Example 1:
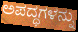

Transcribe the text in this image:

ಅಪದ್ಧಗಳನ್ನು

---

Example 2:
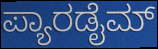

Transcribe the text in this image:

ಪ್ಯಾರಡೈಮ್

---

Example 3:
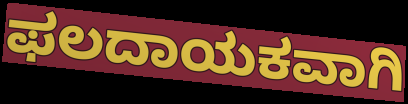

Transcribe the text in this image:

ಫಲದಾಯಕವಾಗಿ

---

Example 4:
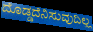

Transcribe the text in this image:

ದೊಡ್ಡದೆನಿಸುವುದಿಲ್ಲ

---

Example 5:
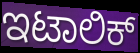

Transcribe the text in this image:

ಇಟಾಲಿಕ್